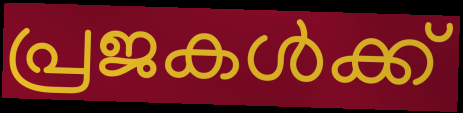
പ്രജകൾക്ക്